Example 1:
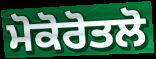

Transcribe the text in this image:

ਮੋਕੋਰੋਤਲੋ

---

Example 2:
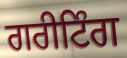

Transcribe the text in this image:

ਗਰੀਟਿੰਗ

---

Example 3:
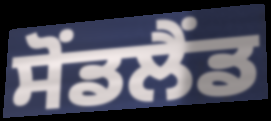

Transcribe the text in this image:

ਸੋਂਡਲੈਂਡ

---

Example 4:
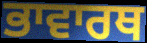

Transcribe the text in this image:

ਭਾਵਾਰਥ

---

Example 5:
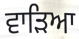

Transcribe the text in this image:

ਵਾੜਿਆ